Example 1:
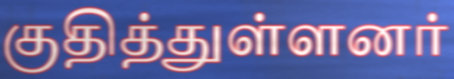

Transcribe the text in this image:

குதித்துள்ளனர்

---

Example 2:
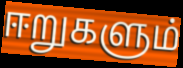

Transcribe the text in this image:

ஈறுகளும்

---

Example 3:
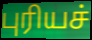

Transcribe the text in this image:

புரியச்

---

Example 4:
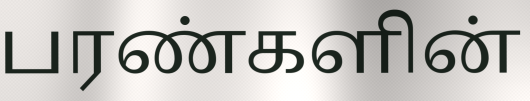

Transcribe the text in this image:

பரண்களின்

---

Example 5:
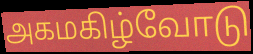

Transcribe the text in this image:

அகமகிழ்வோடு